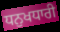
ਧਨੁਖਧਾਰੀ